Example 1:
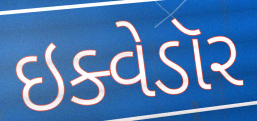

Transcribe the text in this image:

ઇક્વેડૉર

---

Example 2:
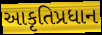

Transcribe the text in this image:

આકૃતિપ્રધાન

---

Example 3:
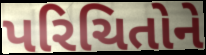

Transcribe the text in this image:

પરિચિતોને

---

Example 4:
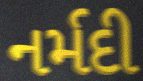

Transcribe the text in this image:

નર્મદી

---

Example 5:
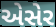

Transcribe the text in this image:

એસેર